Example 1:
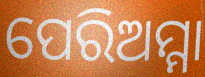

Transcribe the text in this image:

ପେରିଅମ୍ମା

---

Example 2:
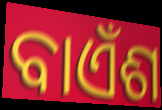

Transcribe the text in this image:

ବାଏଁଶ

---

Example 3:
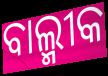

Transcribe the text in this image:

ବାଲ୍ମୀକ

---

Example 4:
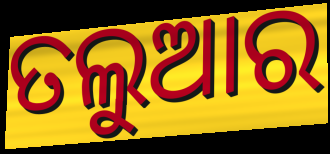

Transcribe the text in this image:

ତଲୁଆର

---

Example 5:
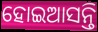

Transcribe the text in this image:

ହୋଇଆସନ୍ତି